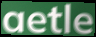
aetle